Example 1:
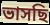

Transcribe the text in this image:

ভাসছি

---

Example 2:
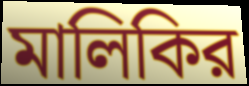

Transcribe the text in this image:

মালিকির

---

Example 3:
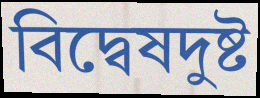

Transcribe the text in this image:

বিদ্বেষদুষ্ট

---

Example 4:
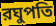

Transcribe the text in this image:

রঘুপতি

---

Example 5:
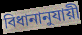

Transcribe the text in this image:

বিধানানুযায়ী